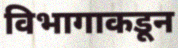
विभागाकडून